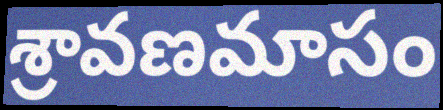
శ్రావణమాసం